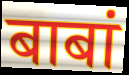
बाबां